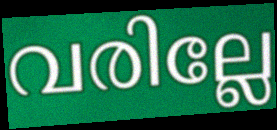
വരില്ലേ